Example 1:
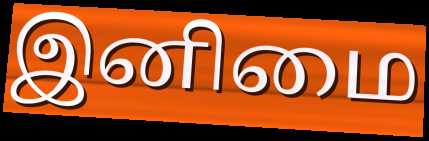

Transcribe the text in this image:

இனிமை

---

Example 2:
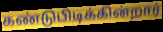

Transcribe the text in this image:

கண்டுபிடிக்கின்றார்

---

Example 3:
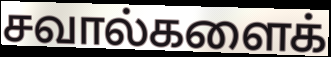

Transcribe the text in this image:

சவால்களைக்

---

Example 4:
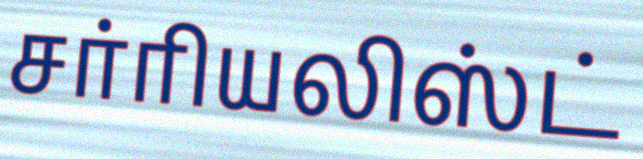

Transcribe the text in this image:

சர்ரியலிஸ்ட்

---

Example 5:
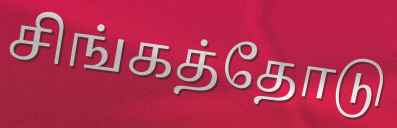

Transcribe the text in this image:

சிங்கத்தோடு